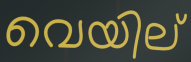
വെയില്